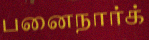
பனைநார்க்